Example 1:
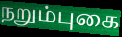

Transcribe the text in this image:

நறும்புகை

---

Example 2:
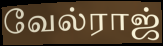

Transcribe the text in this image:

வேல்ராஜ்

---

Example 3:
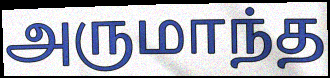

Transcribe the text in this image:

அருமாந்த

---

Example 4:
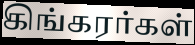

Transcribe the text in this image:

கிங்கரர்கள்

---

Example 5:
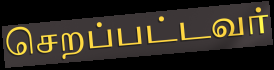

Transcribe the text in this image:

செறப்பட்டவர்